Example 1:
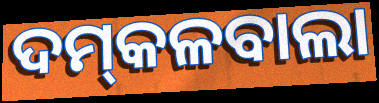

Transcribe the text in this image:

ଦମ୍‍କଳବାଲା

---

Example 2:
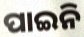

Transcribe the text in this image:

ପାଇନି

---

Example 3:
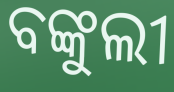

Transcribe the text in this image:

ବଙ୍କୁଲୀ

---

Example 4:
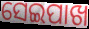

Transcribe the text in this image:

ସେଇପାଖ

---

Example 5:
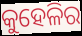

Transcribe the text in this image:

କୁହେଳିର